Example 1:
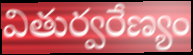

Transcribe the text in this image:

వితుర్వరేణ్యం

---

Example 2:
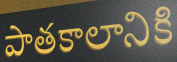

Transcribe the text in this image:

పాతకాలానికి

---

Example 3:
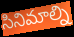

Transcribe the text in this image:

సినిమాల్ని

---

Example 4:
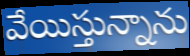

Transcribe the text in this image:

వేయిస్తున్నాను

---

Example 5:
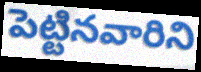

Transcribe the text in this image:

పెట్టినవారిని